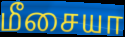
மீசையா